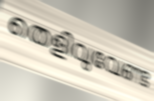
തെളിവുവേണ്ട